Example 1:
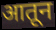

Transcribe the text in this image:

आतून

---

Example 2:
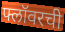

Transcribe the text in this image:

फ्लॉवरची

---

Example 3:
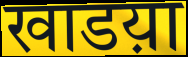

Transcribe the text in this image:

खाडय़ा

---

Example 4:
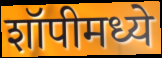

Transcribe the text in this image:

शॉपीमध्ये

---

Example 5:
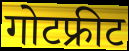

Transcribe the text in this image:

गोटफ्रीट